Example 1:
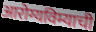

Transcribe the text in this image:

आरोग्यविम्याची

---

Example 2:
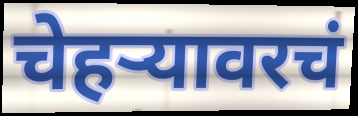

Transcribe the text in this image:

चेहऱ्यावरचं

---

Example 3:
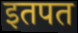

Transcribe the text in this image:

इतपत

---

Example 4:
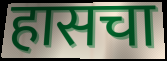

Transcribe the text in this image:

हासचा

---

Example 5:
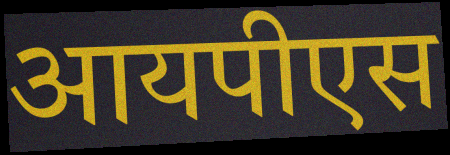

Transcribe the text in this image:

आयपीएस